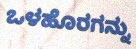
ಒಳಹೊರಗನ್ನು